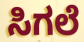
ಸಿಗಲೆ